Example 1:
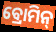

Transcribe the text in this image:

ବ୍ରୋମିନ୍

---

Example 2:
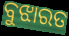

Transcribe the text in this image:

ବୁଝାରତ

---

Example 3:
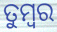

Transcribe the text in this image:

ତୁମ୍ବର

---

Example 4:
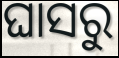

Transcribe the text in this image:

ଘାସରୁ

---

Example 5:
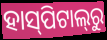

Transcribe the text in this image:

ହାସ୍‍ପିଟାଲ୍‍ରୁ